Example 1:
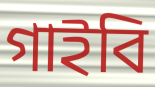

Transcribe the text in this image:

গাইবি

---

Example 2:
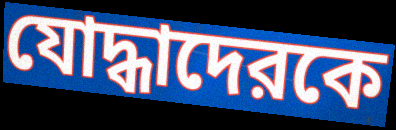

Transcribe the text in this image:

যোদ্ধাদেরকে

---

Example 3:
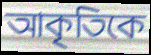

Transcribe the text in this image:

আকৃতিকে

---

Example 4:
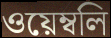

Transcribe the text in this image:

ওয়েম্বলি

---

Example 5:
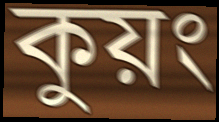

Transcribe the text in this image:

কুয়ং